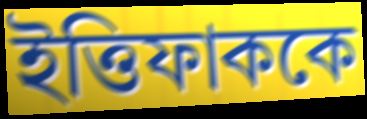
ইত্তিফাককে